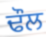
ਢੌਲ